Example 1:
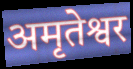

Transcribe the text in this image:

अमृतेश्वर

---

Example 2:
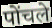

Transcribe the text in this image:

पोंचले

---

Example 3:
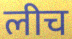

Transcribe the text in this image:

लीच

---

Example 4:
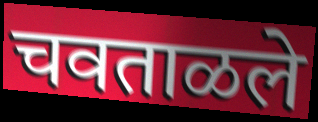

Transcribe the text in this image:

चवताळले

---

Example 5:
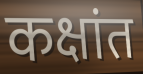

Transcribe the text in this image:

कक्षांत